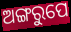
ଅଙ୍ଗରୁପେ